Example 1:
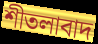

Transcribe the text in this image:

শীতলাবাদ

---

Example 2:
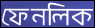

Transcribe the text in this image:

ফেনলিক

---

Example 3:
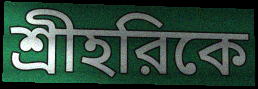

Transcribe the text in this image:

শ্রীহরিকে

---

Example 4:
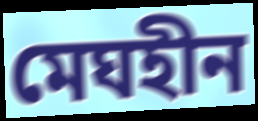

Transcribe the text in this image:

মেঘহীন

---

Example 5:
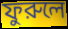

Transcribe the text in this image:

ফুরুলে